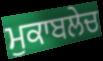
ਮੁਕਾਬਲੇਚ